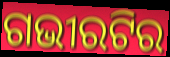
ଗଭୀରଟିର